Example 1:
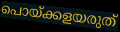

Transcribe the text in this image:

പൊയ്ക്കളയരുത്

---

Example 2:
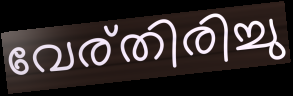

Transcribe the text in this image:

വേര്തിരിച്ചു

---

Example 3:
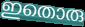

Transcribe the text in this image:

ഇതൊരു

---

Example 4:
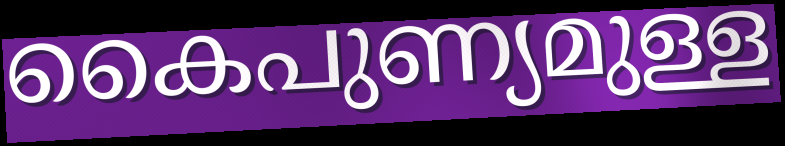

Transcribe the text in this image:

കൈപുണ്യമുള്ള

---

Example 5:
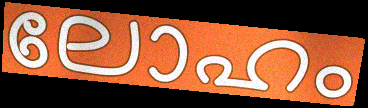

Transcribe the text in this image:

ലോഹം